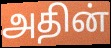
அதின்